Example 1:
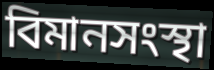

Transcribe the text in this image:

বিমানসংস্থা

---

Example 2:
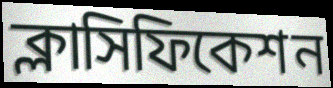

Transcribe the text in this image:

ক্লাসিফিকেশন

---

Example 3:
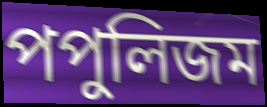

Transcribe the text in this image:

পপুলিজম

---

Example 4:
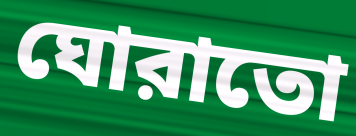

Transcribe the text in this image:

ঘোরাতো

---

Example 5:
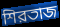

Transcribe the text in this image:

শিরতাজ